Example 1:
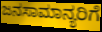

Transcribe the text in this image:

ಜನಸಾಮಾನ್ಯರಿಗೆ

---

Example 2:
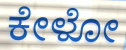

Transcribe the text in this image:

ಕೇಳೋ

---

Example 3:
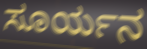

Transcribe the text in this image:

ಸೂರ್ಯನ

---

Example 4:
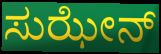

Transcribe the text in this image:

ಸುಝೇನ್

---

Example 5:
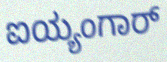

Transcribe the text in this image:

ಐಯ್ಯಂಗಾರ್